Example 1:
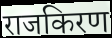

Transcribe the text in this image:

राजकिरण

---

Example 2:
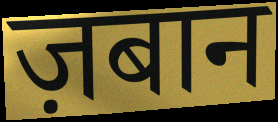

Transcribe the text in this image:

ज़बान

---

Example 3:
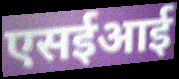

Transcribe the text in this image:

एसईआई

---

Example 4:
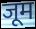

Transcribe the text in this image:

जूम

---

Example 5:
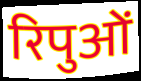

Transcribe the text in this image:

रिपुओं